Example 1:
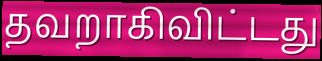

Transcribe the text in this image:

தவறாகிவிட்டது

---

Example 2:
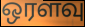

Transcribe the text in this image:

ஒரளவு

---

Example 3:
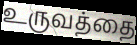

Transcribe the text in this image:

உருவத்தை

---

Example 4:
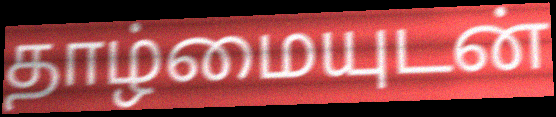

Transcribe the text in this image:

தாழ்மையுடன்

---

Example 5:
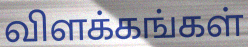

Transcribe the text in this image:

விளக்கங்கள்